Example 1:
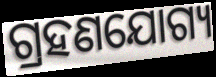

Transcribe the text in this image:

ଗ୍ରହଣଯୋଗ୍ୟ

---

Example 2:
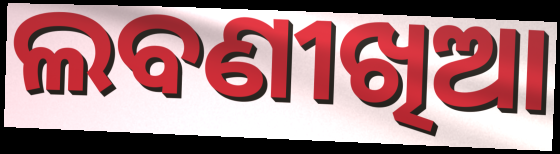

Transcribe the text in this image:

ଲବଣୀଖିଆ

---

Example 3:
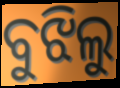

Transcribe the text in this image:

ବୁଝିଲୁ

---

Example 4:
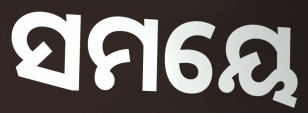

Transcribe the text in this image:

ସମୟେ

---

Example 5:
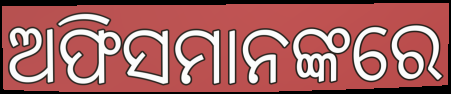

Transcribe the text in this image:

ଅଫିସମାନଙ୍କରେ